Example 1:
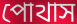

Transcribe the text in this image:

পোথাস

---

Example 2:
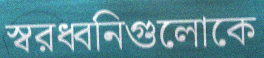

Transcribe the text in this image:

স্বরধ্বনিগুলোকে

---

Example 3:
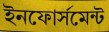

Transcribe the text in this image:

ইনফোর্সমেন্ট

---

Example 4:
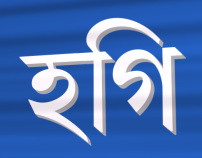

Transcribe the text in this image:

হগি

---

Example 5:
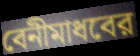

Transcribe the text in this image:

বেনীমাধবের